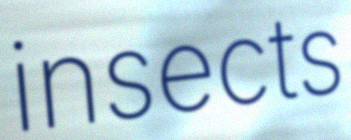
insects